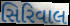
સિરિવાલ